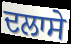
ਦਲਾਸੇ